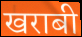
खराबी